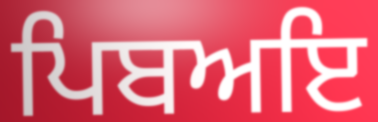
ਪਿਬਅਇ